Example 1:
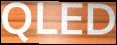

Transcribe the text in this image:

QLED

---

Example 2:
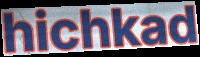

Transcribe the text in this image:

hichkad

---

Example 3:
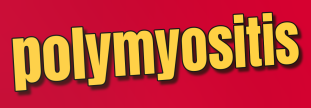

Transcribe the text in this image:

polymyositis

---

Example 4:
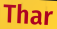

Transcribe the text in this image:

Thar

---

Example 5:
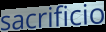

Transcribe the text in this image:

sacrificio